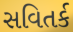
સવિતર્ક